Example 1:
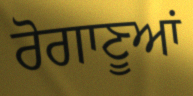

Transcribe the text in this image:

ਰੋਗਾਣੂਆਂ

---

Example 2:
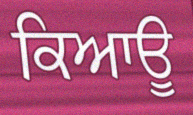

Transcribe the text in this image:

ਕਿਆਊ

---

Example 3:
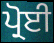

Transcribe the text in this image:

ਪ੍ਰੋਈ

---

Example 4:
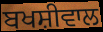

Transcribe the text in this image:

ਬਖਸ਼ੀਵਾਲ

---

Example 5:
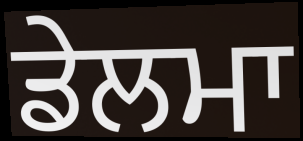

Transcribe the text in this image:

ਡੇਲਮਾ